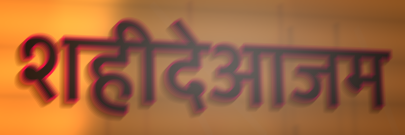
शहीदेआजम